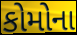
કોમોના